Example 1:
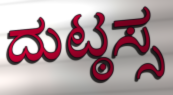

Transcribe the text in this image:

ದುಟ್ಠಸ್ಸ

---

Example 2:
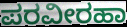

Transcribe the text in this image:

ಪರವೀರಹಾ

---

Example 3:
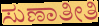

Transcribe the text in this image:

ಸುಣಾತೀತಿ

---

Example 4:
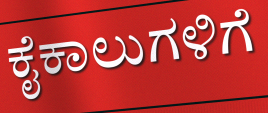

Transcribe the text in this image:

ಕೈಕಾಲುಗಳಿಗೆ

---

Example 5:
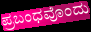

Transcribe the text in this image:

ಪ್ರಬಂಧವೊಂದು